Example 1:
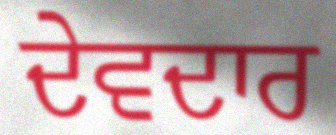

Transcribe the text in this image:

ਦੇਵਦਾਰ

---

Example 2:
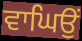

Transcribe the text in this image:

ਵਾਘਿਉਂ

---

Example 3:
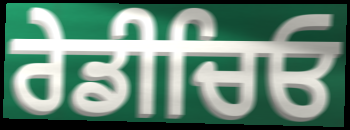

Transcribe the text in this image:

ਰੇਡੀਚਿਓ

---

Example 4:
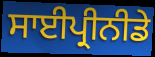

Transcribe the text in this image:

ਸਾਈਪ੍ਰੀਨੀਡੇ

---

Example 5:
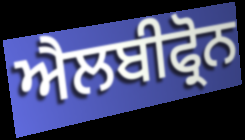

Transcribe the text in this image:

ਐਲਬੀਫ੍ਰੋਨ